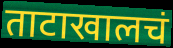
ताटाखालचं